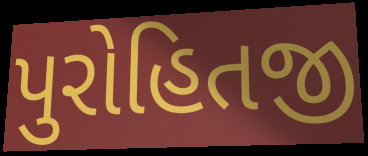
પુરોહિતજી